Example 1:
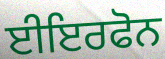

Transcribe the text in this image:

ਈਇਰਫੋਨ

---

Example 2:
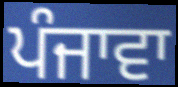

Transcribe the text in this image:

ਪੰਜਾਵਾ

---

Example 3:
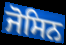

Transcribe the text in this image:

ਜੋਸਿਨ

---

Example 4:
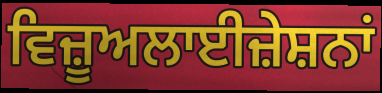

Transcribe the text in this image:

ਵਿਜ਼ੂਅਲਾਈਜ਼ੇਸ਼ਨਾਂ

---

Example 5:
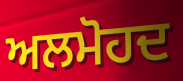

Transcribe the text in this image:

ਅਲਮੋਹਦ